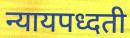
न्यायपध्दती